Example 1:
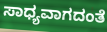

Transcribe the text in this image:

ಸಾಧ್ಯವಾಗದಂತೆ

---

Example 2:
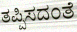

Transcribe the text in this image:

ತಪ್ಪಿಸದಂತೆ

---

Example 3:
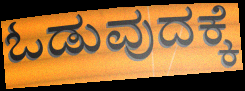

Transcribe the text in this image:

ಓಡುವುದಕ್ಕೆ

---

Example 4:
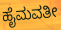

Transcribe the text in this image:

ಹೈಮವತೀ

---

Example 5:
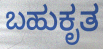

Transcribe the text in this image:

ಬಹುಕೃತ